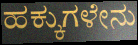
ಹಕ್ಕುಗಳೇನು